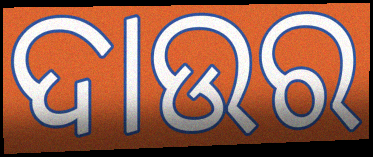
ଦାଉର